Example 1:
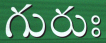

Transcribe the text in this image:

గురుః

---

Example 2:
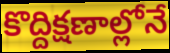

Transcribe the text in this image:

కొద్దిక్షణాల్లోనే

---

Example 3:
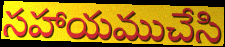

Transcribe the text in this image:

సహాయముచేసి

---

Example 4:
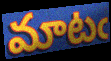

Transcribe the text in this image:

మాటఁ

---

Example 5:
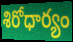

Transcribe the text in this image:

శిరోధార్యం